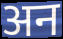
अन